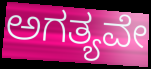
ಅಗತ್ಯವೇ